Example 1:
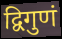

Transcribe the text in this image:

द्विगुणं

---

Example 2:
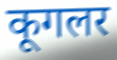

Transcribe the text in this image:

कूगलर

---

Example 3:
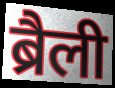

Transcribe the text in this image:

ब्रैली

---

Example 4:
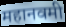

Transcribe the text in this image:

महानवमी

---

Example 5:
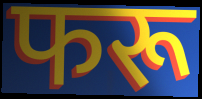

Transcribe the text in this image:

फरू